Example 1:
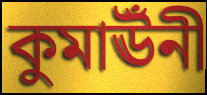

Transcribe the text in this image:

কুমাঊঁনী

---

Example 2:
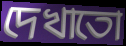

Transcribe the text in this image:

দেখাতো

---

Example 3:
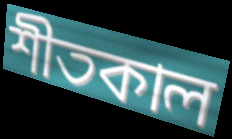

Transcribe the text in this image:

শীতকাল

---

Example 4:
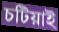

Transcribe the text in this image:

চটিয়াই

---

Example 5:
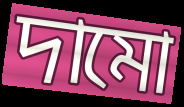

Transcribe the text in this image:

দামো